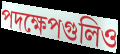
পদক্ষেপগুলিও